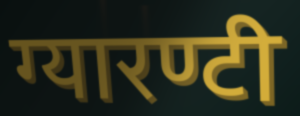
ग्यारण्टी